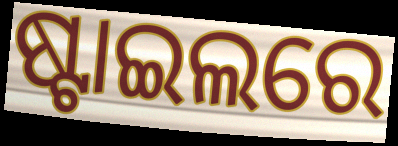
ଷ୍ଟାଇଲରେ